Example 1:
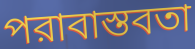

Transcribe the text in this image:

পরাবাস্তবতা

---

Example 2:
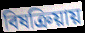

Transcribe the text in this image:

বিষক্রিয়ায়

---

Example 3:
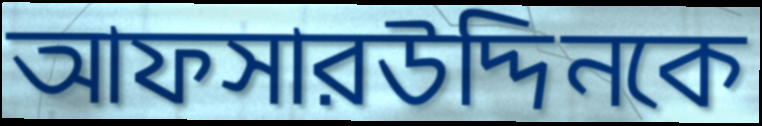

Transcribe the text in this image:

আফসারউদ্দিনকে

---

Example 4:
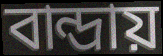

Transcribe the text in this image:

বান্দ্রায়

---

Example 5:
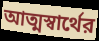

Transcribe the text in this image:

আত্মস্বার্থের